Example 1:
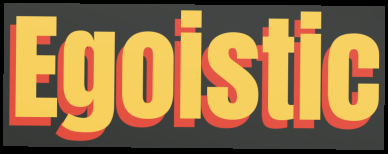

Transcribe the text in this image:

Egoistic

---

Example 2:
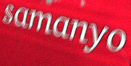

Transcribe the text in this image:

samanyo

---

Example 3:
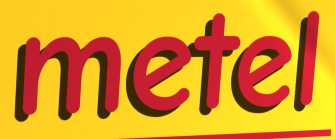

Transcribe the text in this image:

metel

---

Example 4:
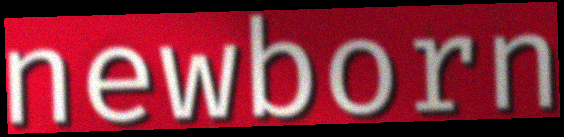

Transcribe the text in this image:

newborn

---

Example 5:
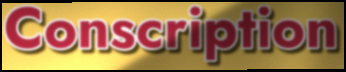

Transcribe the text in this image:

Conscription